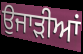
ਉਜਾੜੀਆਂ